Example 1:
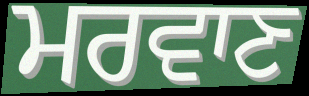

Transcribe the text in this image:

ਮਰਵਾਣ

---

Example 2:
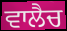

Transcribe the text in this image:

ਵਾਲੈਚ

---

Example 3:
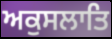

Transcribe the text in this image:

ਅਕੁਸਲਾਤਿ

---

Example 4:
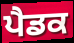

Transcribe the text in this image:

ਪੈਡਕ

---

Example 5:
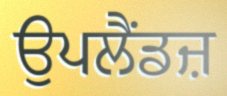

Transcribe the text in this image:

ਉਪਲੈਂਡਜ਼